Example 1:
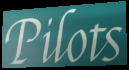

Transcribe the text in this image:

Pilots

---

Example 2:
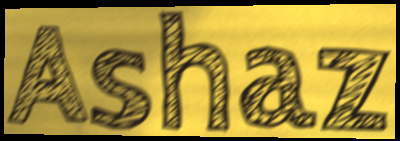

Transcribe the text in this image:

Ashaz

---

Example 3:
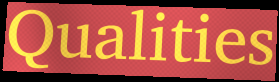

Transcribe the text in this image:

Qualities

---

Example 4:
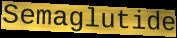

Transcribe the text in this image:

Semaglutide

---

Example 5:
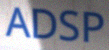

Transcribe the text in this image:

ADSP